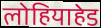
लोहियाहेड